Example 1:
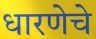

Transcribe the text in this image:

धारणेचे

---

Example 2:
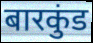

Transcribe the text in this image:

बारकुंड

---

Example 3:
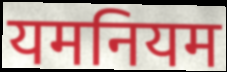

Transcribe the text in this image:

यमनियम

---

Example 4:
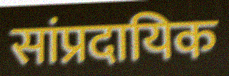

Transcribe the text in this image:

सांप्रदायिक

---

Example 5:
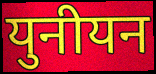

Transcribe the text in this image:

युनीयन